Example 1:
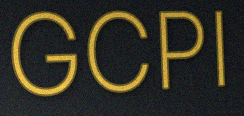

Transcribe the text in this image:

GCPI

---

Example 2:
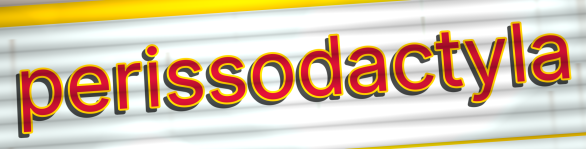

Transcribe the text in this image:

perissodactyla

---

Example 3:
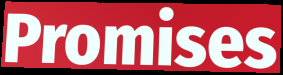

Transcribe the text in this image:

Promises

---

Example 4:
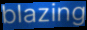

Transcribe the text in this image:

blazing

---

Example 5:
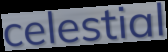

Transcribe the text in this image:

celestial